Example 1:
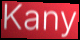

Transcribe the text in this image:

Kany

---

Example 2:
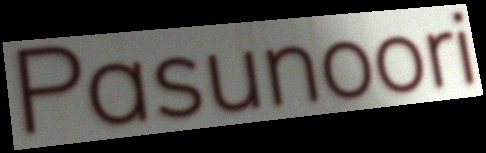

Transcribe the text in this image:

Pasunoori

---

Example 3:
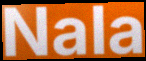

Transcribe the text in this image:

Nala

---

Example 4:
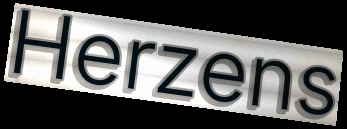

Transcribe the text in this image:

Herzens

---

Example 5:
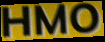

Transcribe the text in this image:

HMO